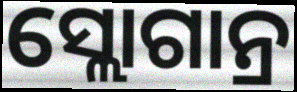
ସ୍ଲୋଗାନ୍ର